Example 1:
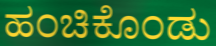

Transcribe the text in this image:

ಹಂಚಿಕೊಂಡು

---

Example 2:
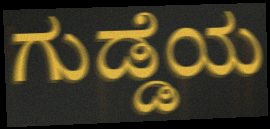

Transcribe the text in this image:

ಗುಡ್ಡೆಯ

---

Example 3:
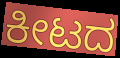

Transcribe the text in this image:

ಕೀಟದ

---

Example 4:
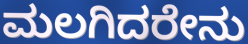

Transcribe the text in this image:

ಮಲಗಿದರೇನು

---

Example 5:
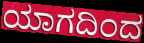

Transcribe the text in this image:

ಯಾಗದಿಂದ